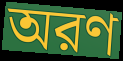
অরণ